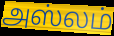
அஸ்லம்